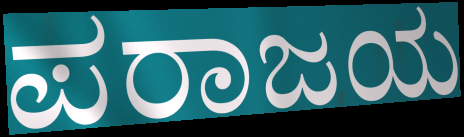
ಪರಾಜಯ